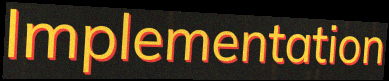
Implementation